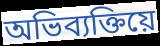
অভিব্যক্তিয়ে